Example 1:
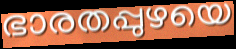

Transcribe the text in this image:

ഭാരതപ്പുഴയെ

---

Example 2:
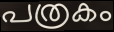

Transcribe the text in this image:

പത്രകം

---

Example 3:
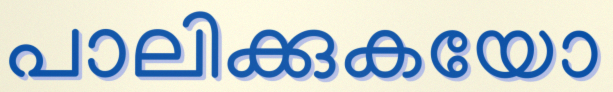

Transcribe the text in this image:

പാലിക്കുകയോ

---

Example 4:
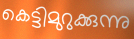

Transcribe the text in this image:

കെട്ടിമുറുക്കുന്നു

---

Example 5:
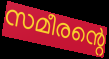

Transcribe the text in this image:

സമീരന്റെ